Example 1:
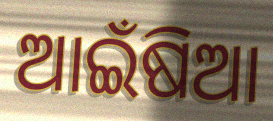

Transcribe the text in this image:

ଆଇଁଷିଆ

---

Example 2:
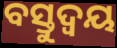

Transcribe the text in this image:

ବସ୍ତୁଦ୍ୱୟ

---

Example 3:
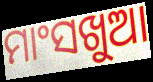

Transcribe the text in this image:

ମାଂସଖୁଆ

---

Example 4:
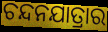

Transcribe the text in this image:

ଚନ୍ଦନଯାତ୍ରାର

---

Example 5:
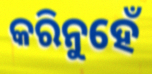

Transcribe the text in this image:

କରିନୁହେଁ